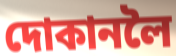
দোকানলৈ